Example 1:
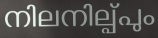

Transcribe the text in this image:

നിലനില്പ്പും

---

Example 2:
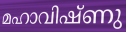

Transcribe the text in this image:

മഹാവിഷ്ണു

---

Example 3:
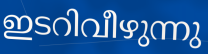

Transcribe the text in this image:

ഇടറിവീഴുന്നു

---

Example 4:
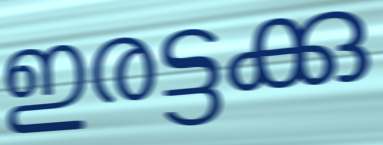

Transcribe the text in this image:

ഇരട്ടക്കു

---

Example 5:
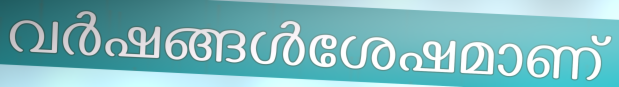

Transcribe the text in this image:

വർഷങ്ങൾശേഷമാണ്